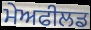
ਮੇਅਫੀਲਡ